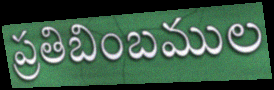
ప్రతిబింబముల